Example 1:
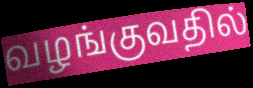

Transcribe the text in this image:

வழங்குவதில்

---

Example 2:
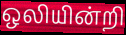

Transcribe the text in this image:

ஒலியின்றி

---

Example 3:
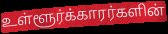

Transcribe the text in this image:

உள்ளூர்க்காரர்களின்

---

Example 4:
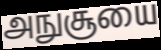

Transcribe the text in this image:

அநுசூயை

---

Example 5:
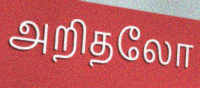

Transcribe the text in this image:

அறிதலோ